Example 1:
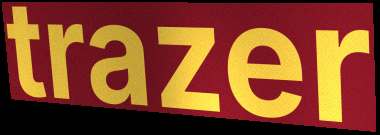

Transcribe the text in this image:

trazer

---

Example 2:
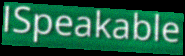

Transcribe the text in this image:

ISpeakable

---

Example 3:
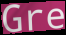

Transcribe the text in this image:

Gre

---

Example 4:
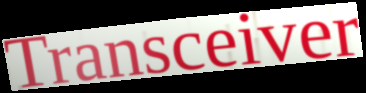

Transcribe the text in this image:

Transceiver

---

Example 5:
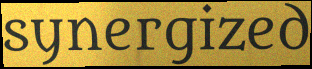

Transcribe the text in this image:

synergized